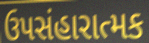
ઉપસંહારાત્મક